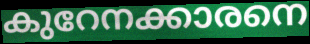
കുറേനക്കാരനെ